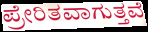
ಪ್ರೇರಿತವಾಗುತ್ತವೆ